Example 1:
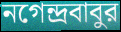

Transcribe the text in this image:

নগেন্দ্রবাবুর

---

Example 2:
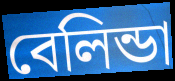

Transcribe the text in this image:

বেলিন্ডা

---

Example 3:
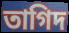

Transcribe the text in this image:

তাগিদ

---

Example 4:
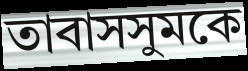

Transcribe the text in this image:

তাবাসসুমকে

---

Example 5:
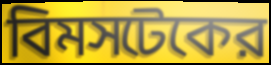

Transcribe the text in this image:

বিমসটেকের